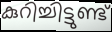
കുറിച്ചിട്ടുണ്ട്